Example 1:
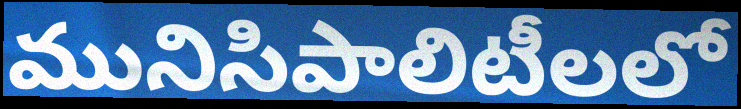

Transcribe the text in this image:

మునిసిపాలిటీలలో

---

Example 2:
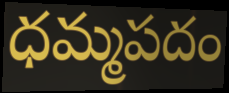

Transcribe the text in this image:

ధమ్మపదం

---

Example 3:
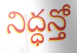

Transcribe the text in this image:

నిద్ధన్తో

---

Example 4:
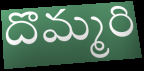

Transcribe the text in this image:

దొమ్మరి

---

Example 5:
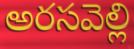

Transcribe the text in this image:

అరసవెల్లి